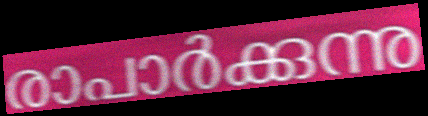
രാപാർക്കുന്നു